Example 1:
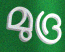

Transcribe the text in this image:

മുദ്ര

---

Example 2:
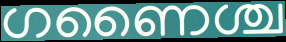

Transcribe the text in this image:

ഗണൈശ്ച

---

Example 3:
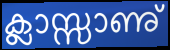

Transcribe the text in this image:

ക്ലാസ്സാണു്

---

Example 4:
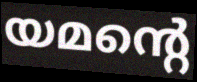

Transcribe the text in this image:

യമന്റെ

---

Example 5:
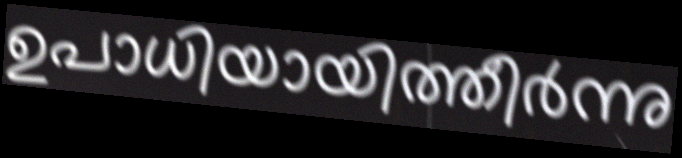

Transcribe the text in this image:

ഉപാധിയായിത്തീർന്നു